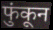
फुंकून